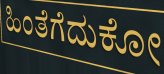
ಹಿಂತೆಗೆದುಕೋ